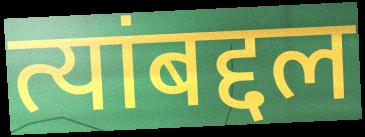
त्यांबद्दल